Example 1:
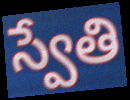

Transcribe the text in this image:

స్వేతి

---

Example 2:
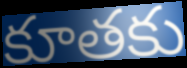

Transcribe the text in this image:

కూతకు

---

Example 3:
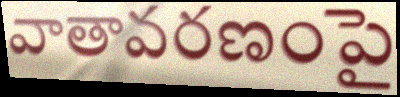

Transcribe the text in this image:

వాతావరణంపై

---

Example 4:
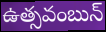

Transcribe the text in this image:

ఉత్సవంబున్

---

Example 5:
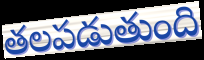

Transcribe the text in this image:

తలపడుతుంది